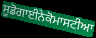
ਸੂਡੋਗਾਈਨੇਕੋਮਾਸਟੀਆ